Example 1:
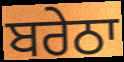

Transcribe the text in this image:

ਬਰੇਠਾ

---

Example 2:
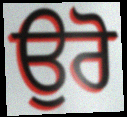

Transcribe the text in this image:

ਉਰੋ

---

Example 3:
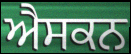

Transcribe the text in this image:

ਐਸਕਨ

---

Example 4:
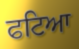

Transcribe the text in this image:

ਫਟਿਆ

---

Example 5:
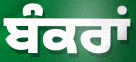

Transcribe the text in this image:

ਬੰਕਰਾਂ